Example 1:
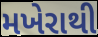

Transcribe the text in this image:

મખેરાથી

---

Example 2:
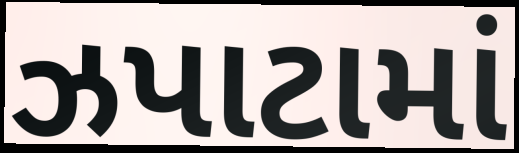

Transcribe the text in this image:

ઝપાટામાં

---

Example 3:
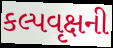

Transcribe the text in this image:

કલ્પવૃક્ષની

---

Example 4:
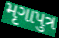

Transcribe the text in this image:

મૃગાપુત્ર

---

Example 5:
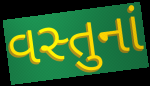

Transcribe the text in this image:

વસ્તુનાં